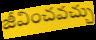
జీవించవచ్చు